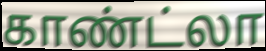
காண்ட்லா